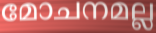
മോചനമല്ല